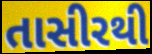
તાસીરથી